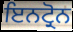
ਇਨਟ੍ਰੋਨ